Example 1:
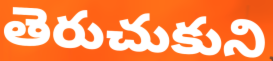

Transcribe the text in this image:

తెరుచుకుని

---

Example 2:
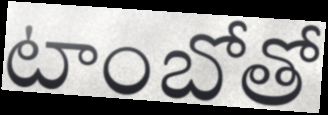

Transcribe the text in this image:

టాంబోతో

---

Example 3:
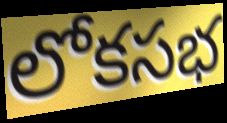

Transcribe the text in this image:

లోకసభ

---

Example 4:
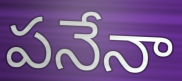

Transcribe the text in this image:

పనేనా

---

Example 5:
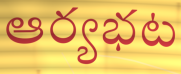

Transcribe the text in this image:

ఆర్యభట